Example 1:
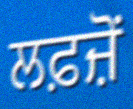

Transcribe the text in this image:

ਲਫ਼ਜ਼ੋਂ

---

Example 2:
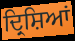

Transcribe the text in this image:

ਦ੍ਰਿਸ਼ਿਆਂ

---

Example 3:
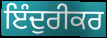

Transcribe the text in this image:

ਇੰਦੁਰੀਕਰ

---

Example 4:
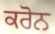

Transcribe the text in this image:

ਕਰੋਨ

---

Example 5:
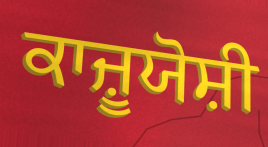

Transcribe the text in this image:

ਕਾਜ਼ੂਯੋਸ਼ੀ